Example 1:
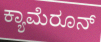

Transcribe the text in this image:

ಕ್ಯಾಮೆರೂನ್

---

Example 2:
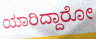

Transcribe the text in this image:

ಯಾರಿದ್ದಾರೋ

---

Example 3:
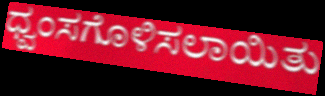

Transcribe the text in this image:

ಧ್ವಂಸಗೊಳಿಸಲಾಯಿತು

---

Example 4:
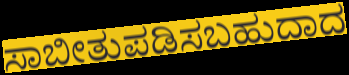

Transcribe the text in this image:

ಸಾಬೀತುಪಡಿಸಬಹುದಾದ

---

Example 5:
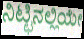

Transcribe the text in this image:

ನಿಟ್ಟಿನಲ್ಲಿಯೇ